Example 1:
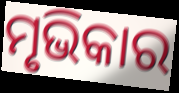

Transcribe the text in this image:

ମୃଭିକାର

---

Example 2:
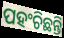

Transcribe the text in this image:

ପହଂଚିଛନ୍ତି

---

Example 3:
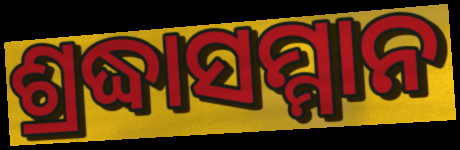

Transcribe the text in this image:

ଶ୍ରଦ୍ଧାସମ୍ମାନ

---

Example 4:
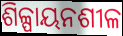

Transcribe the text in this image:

ଶିଳ୍ପାୟନଶୀଳ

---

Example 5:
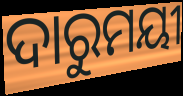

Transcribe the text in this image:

ଦାରୁମୟୀ